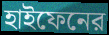
হাইফেনের